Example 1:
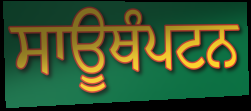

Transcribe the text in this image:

ਸਾਊਥੰਪਟਨ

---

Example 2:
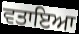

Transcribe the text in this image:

ਵਤਾਇਆ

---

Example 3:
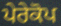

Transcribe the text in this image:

ਪੇਰੇਕੋਪ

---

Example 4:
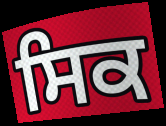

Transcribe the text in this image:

ਸਿਕ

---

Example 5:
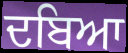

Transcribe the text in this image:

ਦਬਿਆ